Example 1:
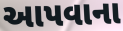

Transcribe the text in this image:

આપવાના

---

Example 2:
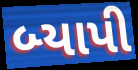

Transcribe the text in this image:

બ્યાપી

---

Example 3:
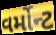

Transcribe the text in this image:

વર્મોન્ટ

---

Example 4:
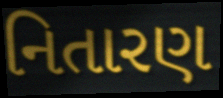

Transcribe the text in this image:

નિતારણ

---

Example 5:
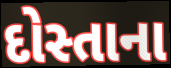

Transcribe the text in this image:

દોસ્તાના